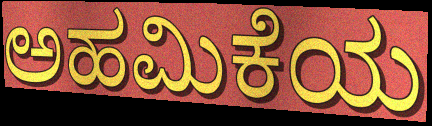
ಅಹಮಿಕೆಯ